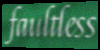
faultless